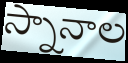
స్నానాల